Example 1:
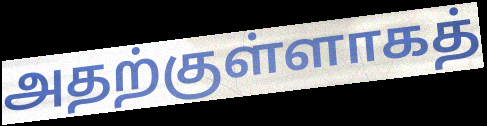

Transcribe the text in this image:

அதற்குள்ளாகத்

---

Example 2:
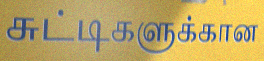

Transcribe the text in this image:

சுட்டிகளுக்கான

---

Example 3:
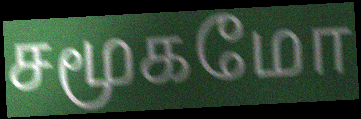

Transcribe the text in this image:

சமூகமோ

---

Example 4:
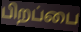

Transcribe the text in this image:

பிறப்பை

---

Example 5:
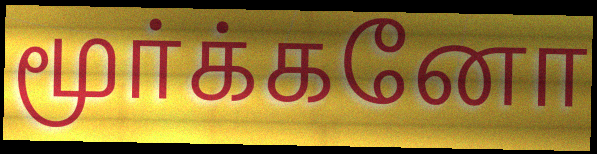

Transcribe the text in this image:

மூர்க்கனோ